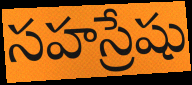
సహస్రేషు